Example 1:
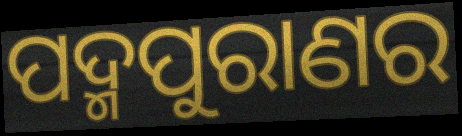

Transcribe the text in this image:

ପଦ୍ମପୁରାଣର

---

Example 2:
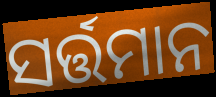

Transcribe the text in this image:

ସର୍ତ୍ତମାନ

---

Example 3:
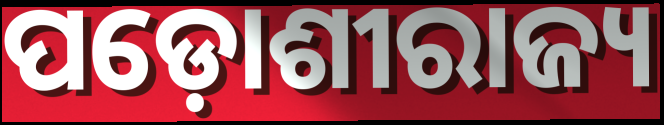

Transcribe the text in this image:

ପଡ଼ୋଶୀରାଜ୍ୟ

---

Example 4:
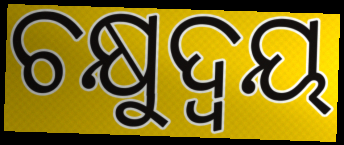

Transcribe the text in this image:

ଚକ୍ଷୁଦ୍ଵୟ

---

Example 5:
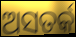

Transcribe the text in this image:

ଅସତର୍କ